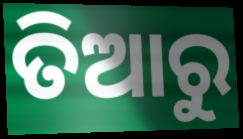
ତିଆରୁ